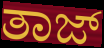
ತಾಜ್